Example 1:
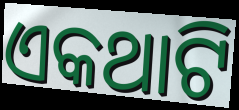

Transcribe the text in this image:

ଏକଥାଟି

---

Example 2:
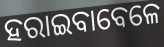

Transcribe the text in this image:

ହରାଇବାବେଳେ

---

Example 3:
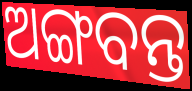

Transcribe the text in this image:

ଅଙ୍ଗବନ୍ତ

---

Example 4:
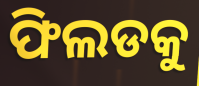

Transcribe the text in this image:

ଫିଲଡକୁ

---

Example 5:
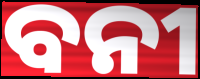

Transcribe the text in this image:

ବନୀ